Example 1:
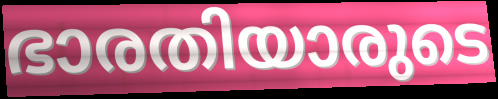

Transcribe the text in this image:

ഭാരതിയാരുടെ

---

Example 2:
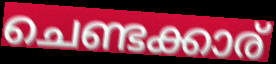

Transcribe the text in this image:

ചെണ്ടക്കാര്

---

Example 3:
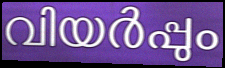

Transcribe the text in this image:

വിയർപ്പും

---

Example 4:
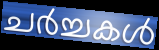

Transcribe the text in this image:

ചർച്ചകൾ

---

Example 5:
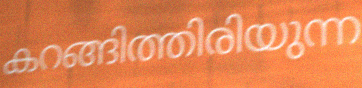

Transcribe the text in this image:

കറങ്ങിത്തിരിയുന്ന